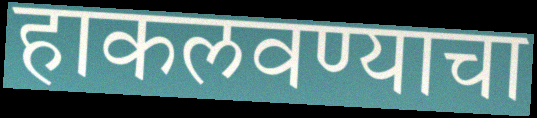
हाकलवण्याचा